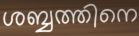
ശബ്ബത്തിനെ